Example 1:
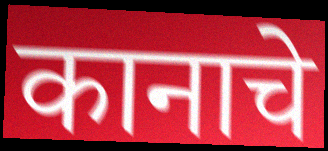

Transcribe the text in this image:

कानाचे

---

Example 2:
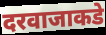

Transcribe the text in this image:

दरवाजाकडे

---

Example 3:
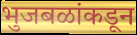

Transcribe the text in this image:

भुजबळांकडून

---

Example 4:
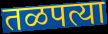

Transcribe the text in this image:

तळपत्या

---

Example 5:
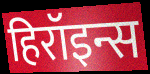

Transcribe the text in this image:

हिरॉइन्स